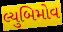
લ્યુબિમોવ